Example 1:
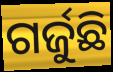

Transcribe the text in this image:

ଗର୍ଜୁଛି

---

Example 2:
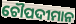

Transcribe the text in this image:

ଚୌପଦୀମାନ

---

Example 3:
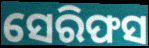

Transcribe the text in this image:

ସେରିଫସ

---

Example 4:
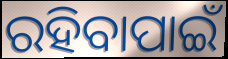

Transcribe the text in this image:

ରହିବାପାଇଁ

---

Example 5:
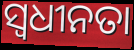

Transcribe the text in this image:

ସ୍ୱଧୀନତା